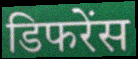
डिफरेंस